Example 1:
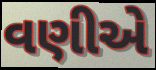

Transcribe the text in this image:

વણીએ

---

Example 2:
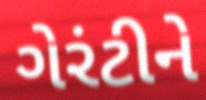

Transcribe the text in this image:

ગેરંટીને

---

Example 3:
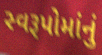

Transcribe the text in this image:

સ્વરૂપોમાંનું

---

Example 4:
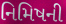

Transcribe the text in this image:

નિમિષની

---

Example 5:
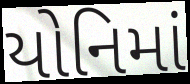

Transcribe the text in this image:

યોનિમાં